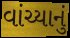
વાંચ્યાનું